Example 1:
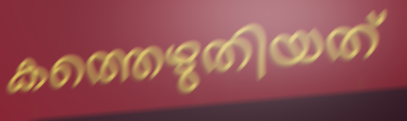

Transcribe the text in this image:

കത്തെഴുതിയത്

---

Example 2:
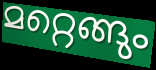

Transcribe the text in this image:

മറ്റെങ്ങും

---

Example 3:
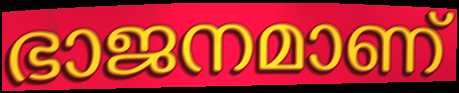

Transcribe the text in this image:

ഭാജനമാണ്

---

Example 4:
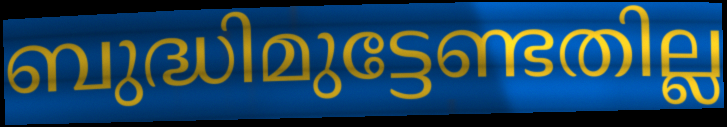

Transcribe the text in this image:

ബുദ്ധിമുട്ടേണ്ടതില്ല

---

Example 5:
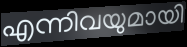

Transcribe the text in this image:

എന്നിവയുമായി